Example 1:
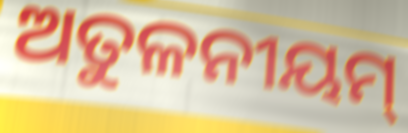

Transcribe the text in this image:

ଅତୁଳନୀୟମ୍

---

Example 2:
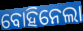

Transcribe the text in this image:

ବୋହିନେଲା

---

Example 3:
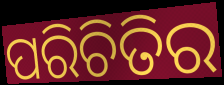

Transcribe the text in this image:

ପରିଚିତିର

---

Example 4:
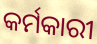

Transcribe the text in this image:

କର୍ମକାରୀ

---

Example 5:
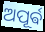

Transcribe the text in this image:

ଅପୂର୍ଵ